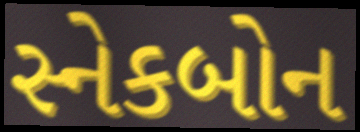
સ્નેકબોન